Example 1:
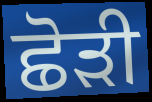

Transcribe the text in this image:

ਛੋੜੀ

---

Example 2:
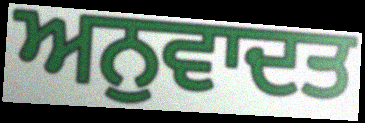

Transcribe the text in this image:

ਅਨੁਵਾਦਤ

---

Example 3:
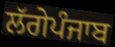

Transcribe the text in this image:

ਲੱਗੇਪੰਜਾਬ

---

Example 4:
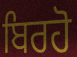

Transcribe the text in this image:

ਬਿਰਹੋ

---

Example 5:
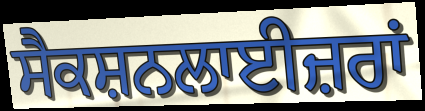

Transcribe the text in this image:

ਸੈਕਸ਼ਨਲਾਈਜ਼ਰਾਂ